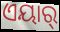
ଏୟାର୍